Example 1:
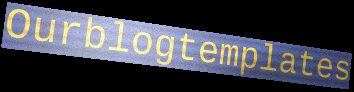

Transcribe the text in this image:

Ourblogtemplates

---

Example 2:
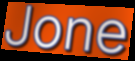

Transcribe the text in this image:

Jone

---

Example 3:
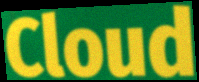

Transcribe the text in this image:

Cloud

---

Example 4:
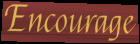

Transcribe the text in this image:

Encourage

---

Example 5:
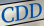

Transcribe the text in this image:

CDD